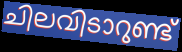
ചിലവിടാറുണ്ട്